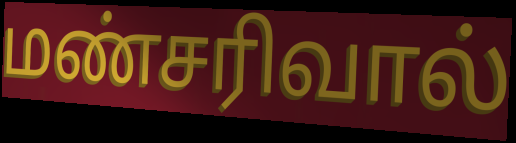
மண்சரிவால்